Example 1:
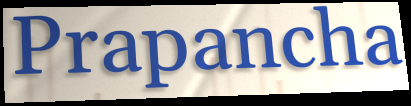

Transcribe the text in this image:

Prapancha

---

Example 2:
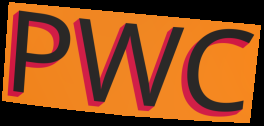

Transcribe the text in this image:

PWC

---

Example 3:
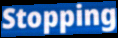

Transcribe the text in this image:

Stopping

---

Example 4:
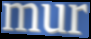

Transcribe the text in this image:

mur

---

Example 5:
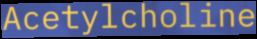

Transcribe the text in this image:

Acetylcholine